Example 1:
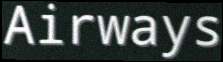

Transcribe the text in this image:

Airways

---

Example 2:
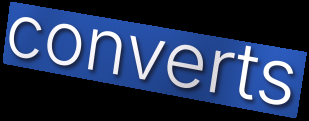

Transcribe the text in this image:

converts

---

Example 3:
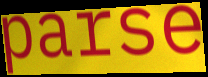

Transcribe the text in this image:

parse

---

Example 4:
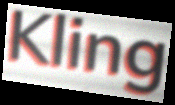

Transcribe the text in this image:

Kling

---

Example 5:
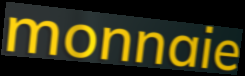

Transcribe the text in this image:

monnaie